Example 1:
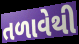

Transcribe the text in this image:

તળાવેથી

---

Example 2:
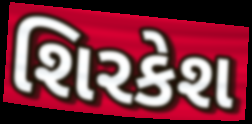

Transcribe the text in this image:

શિરકેશ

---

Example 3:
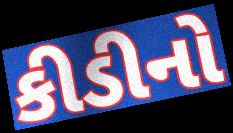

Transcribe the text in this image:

કીડીનો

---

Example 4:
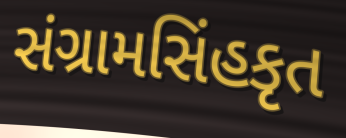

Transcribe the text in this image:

સંગ્રામસિંહકૃત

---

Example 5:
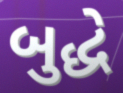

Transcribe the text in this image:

બુદ્ધે